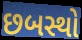
છબસ્થો